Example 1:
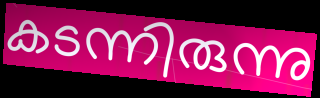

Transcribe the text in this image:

കടന്നിരുന്നു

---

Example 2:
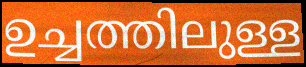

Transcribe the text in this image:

ഉച്ചത്തിലുള്ള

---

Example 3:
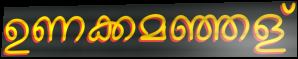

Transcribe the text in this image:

ഉണക്കമഞ്ഞള്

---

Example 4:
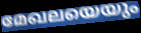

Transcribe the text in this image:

മേഖലയെയും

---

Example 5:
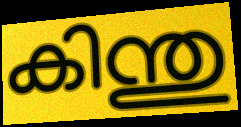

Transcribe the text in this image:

കിന്തു